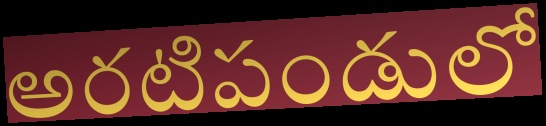
అరటిపండులో